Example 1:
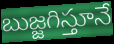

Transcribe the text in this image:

బుజ్జగిస్తూనే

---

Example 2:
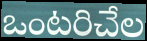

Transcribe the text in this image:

ఒంటరిచేల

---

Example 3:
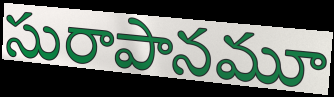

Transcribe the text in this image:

సురాపానమూ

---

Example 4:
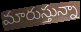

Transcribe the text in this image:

మారుస్తున్నా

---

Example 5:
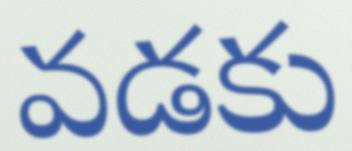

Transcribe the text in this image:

వడకు